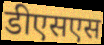
डीएसएस